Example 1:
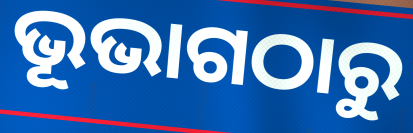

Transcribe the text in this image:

ଭୂଭାଗଠାରୁ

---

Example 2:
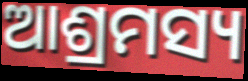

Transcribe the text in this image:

ଆଶ୍ରମସ୍ୟ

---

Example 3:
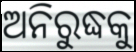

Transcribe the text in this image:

ଅନିରୁଦ୍ଧକୁ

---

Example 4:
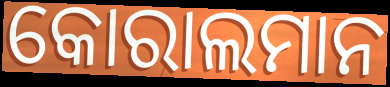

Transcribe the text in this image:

କୋରାଲମାନ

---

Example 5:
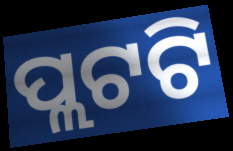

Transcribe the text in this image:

ପ୍ଲଟଟି